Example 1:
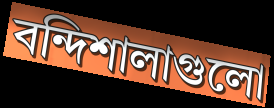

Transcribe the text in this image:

বন্দিশালাগুলো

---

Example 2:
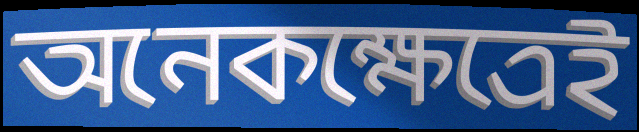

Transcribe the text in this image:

অনেকক্ষেত্রেই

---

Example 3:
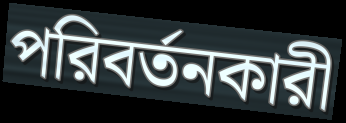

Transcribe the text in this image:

পরিবর্তনকারী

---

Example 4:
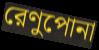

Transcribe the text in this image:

রেণুপোনা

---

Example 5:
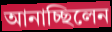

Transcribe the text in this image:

আনাচ্ছিলেন